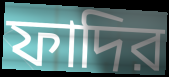
ফাদির